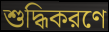
শুদ্ধিকরণে